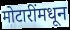
मोटारींमधून